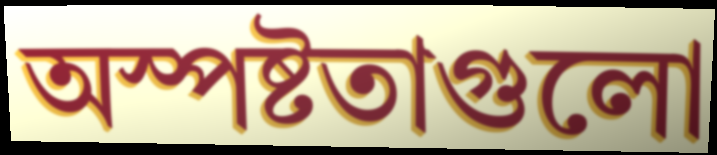
অস্পষ্টতাগুলো